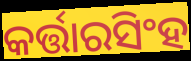
କର୍ତ୍ତାରସିଂହ